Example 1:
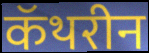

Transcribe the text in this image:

कॅथरीन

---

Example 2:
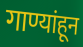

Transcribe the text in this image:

गाण्यांहून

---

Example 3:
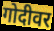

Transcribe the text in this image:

गोदीवर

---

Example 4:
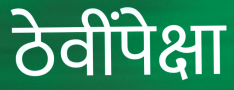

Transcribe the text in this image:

ठेवींपेक्षा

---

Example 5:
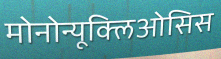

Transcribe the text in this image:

मोनोन्यूक्लिओसिस